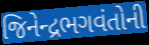
જિનેન્દ્રભગવંતોની